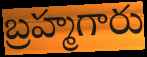
బ్రహ్మగారు